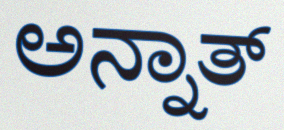
ಅನ್ನಾತ್